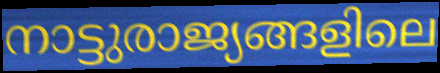
നാട്ടുരാജ്യങ്ങളിലെ